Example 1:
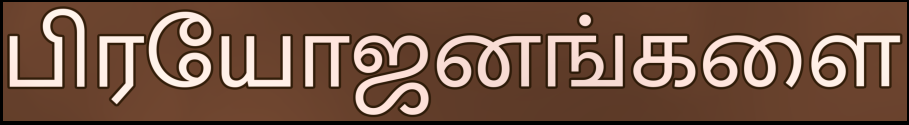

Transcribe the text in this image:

பிரயோஜனங்களை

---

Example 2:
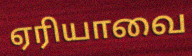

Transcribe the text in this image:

ஏரியாவை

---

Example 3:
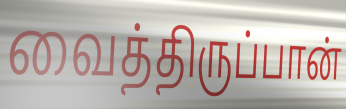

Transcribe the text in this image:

வைத்திருப்பான்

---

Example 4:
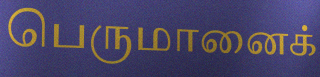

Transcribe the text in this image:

பெருமானைக்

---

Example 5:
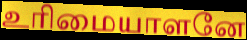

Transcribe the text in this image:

உரிமையாளனே